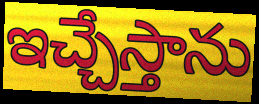
ఇచ్చేస్తాను